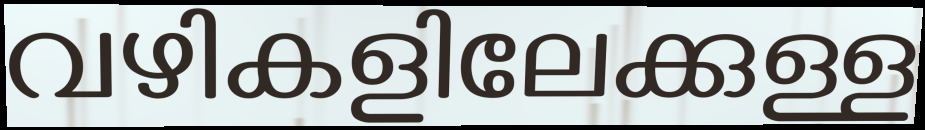
വഴികളിലേക്കുള്ള